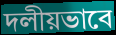
দলীয়ভাবে